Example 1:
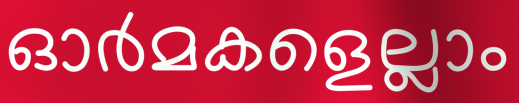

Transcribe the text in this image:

ഓർമകളെല്ലാം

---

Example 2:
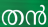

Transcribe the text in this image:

തൻ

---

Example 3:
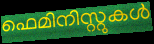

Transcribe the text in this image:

ഫെമിനിസ്റ്റുകൾ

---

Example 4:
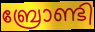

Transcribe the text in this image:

ബ്രോണ്ടി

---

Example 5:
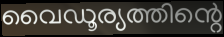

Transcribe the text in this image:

വൈഡൂര്യത്തിന്റെ